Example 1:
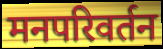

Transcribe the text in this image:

मनपरिवर्तन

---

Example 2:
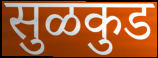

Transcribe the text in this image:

सुळकुड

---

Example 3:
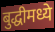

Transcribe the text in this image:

बुद्धीमध्ये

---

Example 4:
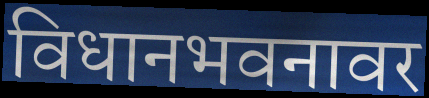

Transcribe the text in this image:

विधानभवनावर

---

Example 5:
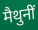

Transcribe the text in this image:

मैथुनीं